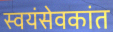
स्वयंसेवकांत